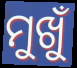
ମୁଖୁଁ